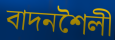
বাদনশৈলী